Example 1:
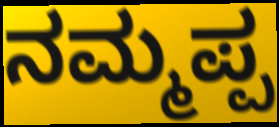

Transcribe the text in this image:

ನಮ್ಮಪ್ಪ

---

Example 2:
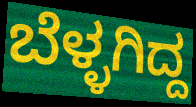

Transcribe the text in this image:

ಬೆಳ್ಳಗಿದ್ದ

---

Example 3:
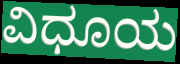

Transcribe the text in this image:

ವಿಧೂಯ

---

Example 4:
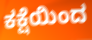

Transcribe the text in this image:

ಕಕ್ಷೆಯಿಂದ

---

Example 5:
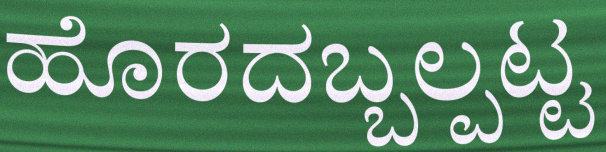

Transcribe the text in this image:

ಹೊರದಬ್ಬಲ್ಪಟ್ಟ